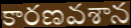
కారణవశాన